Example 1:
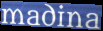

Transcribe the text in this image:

madina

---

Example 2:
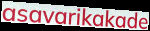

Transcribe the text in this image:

asavarikakade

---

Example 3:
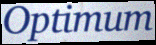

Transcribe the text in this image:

Optimum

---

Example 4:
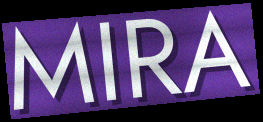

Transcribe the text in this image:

MIRA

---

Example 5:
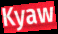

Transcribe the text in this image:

Kyaw